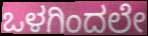
ಒಳಗಿಂದಲೇ